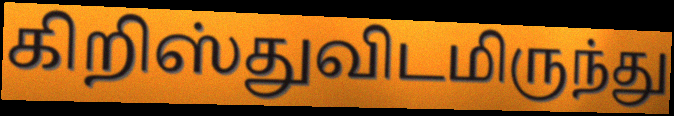
கிறிஸ்துவிடமிருந்து